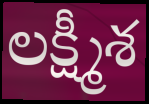
లక్ష్మీశ